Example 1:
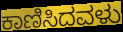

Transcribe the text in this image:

ಕಾಣಿಸಿದವಳು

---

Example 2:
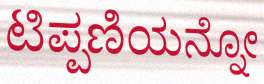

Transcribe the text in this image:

ಟಿಪ್ಪಣಿಯನ್ನೋ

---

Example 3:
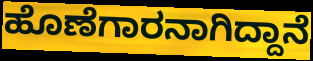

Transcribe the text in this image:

ಹೊಣೆಗಾರನಾಗಿದ್ದಾನೆ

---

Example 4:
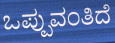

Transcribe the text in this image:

ಒಪ್ಪುವಂತಿದೆ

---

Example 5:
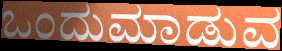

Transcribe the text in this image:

ಒಂದುಮಾಡುವ